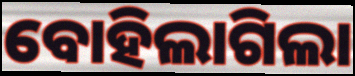
ବୋହିଲାଗିଲା